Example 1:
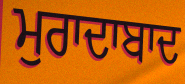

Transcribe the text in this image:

ਮੁਰਾਦਾਬਾਦ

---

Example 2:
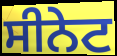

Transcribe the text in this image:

ਸੀਨੇਟ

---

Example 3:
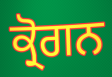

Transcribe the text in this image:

ਕ੍ਰੋਗਨ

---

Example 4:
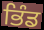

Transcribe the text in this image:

ਭਿੰਡ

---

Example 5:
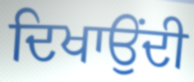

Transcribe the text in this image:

ਦਿਖਾਉਂਦੀ